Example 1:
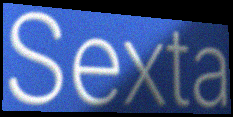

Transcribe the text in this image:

Sexta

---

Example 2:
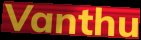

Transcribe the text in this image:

Vanthu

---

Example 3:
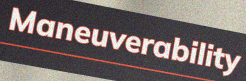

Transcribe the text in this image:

Maneuverability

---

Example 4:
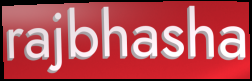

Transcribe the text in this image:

rajbhasha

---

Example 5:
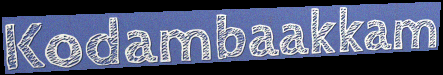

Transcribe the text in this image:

Kodambaakkam